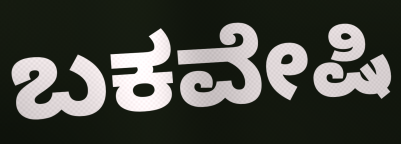
ಬಕವೇಷಿ